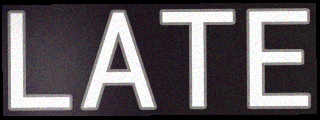
LATE